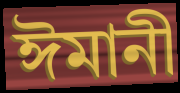
ঈমানী